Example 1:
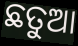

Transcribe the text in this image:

ଛତୁଆ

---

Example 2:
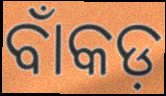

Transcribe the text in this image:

ବାଁକଡ଼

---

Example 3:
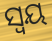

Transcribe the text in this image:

ସ୍ୱୟ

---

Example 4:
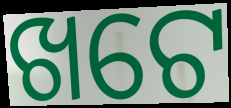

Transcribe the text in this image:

ଖଟେ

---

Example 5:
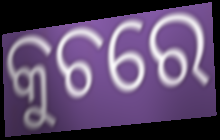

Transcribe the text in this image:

କୁଚରେ